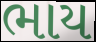
ભાય